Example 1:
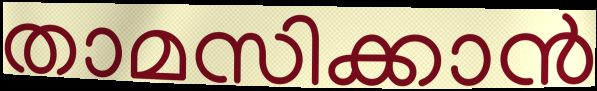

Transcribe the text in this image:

താമസിക്കാൻ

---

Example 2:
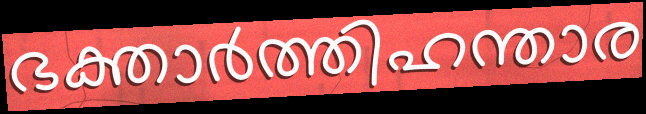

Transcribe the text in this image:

ഭക്താർത്തിഹന്താര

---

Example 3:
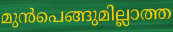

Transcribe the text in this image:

മുൻപെങ്ങുമില്ലാത്ത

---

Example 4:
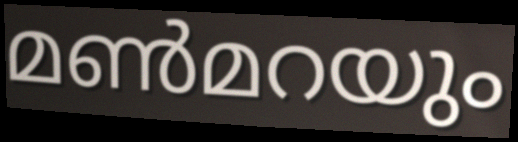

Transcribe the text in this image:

മൺമറയും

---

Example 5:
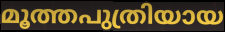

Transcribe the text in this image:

മൂത്തപുത്രിയായ